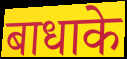
बाधाके